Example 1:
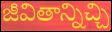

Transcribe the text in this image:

జీవితాన్నిచ్చి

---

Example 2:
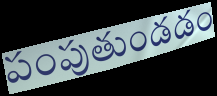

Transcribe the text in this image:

పంపుతుండడం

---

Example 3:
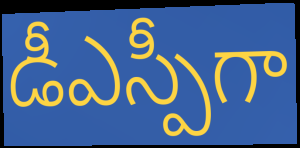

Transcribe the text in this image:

డీఎస్పీగా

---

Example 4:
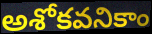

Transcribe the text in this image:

అశోకవనికాం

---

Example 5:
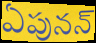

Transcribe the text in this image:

ఏపునన్